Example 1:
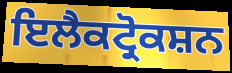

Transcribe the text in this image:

ਇਲੈਕਟ੍ਰੋਕਸ਼ਨ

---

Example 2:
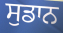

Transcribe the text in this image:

ਸੁਡਾਨ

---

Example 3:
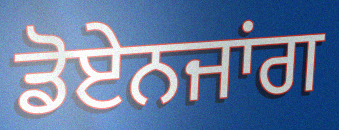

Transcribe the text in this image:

ਡੋਏਨਜਾਂਗ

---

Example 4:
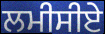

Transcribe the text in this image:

ਲਮੀਸੀਏ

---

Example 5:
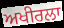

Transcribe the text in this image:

ਅਖੀਰਲਾ